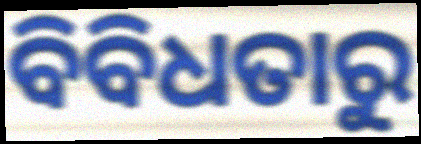
ବିବିଧତାରୁ